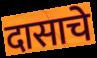
दासाचे